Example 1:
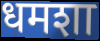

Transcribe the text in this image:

धमशा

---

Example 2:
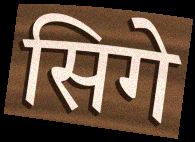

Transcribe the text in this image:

सिगे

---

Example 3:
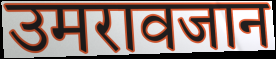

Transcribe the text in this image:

उमरावजान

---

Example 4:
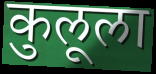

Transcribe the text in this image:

कुलूला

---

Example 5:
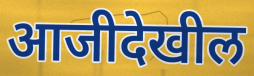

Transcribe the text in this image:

आजीदेखील